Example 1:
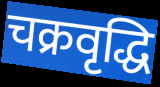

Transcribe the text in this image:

चक्रवृद्धि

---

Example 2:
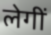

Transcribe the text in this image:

लेगीं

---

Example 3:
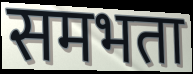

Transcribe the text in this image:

समभता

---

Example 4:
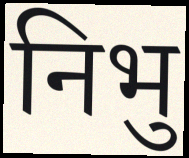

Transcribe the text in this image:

निभु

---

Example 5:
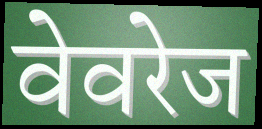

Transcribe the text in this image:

वेवरेज